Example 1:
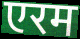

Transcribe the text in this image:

एरम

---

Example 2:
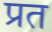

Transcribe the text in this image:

प्रत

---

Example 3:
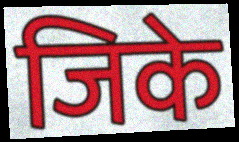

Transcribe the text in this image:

जिके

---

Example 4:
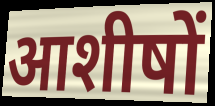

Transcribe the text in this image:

आशीषों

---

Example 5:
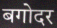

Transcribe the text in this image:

बगोदर